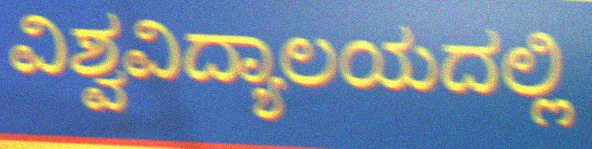
ವಿಶ್ವವಿದ್ಯಾಲಯದಲ್ಲಿ